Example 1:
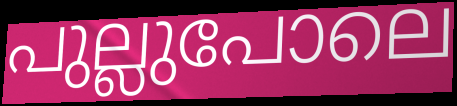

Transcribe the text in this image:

പുല്ലുപോലെ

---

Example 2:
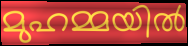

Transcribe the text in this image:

മുഹമ്മയിൽ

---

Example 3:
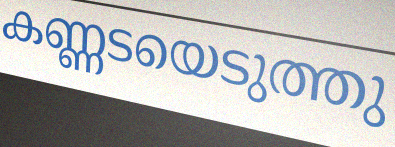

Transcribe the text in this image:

കണ്ണടയെടുത്തു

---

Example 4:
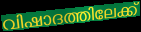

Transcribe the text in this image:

വിഷാദത്തിലേക്ക്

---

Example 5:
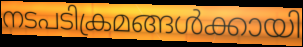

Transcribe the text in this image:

നടപടിക്രമങ്ങൾക്കായി